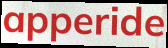
apperide